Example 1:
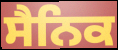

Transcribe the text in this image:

ਸੈਨਿਕ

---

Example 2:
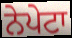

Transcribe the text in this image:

ਨੇਪੇਟਾ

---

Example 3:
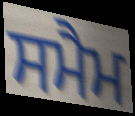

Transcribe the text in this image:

ਸਮੈਮ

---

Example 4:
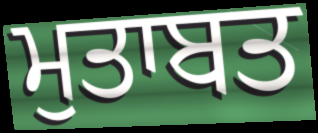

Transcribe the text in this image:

ਮੁਤਾਬਤ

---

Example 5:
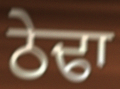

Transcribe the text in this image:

ਠੇਢਾ